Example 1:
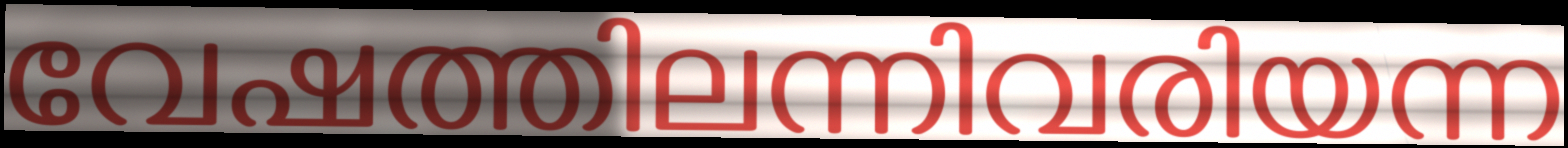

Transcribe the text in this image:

വേഷത്തിലന്നിവരിയന്ന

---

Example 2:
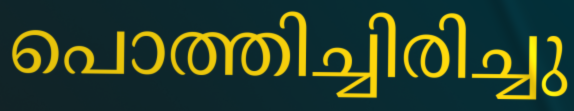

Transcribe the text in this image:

പൊത്തിച്ചിരിച്ചു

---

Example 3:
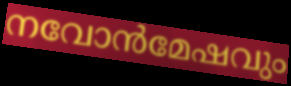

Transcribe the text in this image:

നവോൻമേഷവും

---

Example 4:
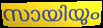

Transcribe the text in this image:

സായിയും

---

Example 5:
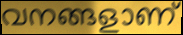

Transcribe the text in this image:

വനങ്ങളാണ്